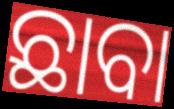
ଛାବା